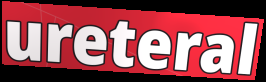
ureteral